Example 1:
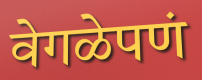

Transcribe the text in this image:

वेगळेपणं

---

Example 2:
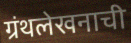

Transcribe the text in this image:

ग्रंथलेखनाची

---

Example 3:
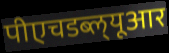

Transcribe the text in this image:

पीएचडब्ल्यूआर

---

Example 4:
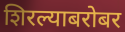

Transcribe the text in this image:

शिरल्याबरोबर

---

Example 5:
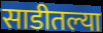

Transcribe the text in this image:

साडीतल्या